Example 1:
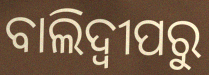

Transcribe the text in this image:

ବାଲିଦ୍ୱୀପରୁ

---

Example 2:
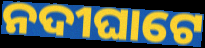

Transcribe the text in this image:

ନଦୀଘାଟେ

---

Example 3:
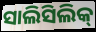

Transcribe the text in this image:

ସାଲିସିଲିକ୍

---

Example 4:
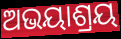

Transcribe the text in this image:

ଅଭୟାଶ୍ରୟ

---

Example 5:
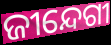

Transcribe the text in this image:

ଜୀନ୍ଦେଗୀ